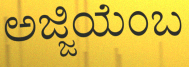
ಅಜ್ಜಿಯೆಂಬ